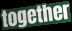
together